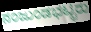
ನಂಜುಂಡಭಟ್ಟರು